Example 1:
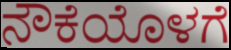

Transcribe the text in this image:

ನೌಕೆಯೊಳಗೆ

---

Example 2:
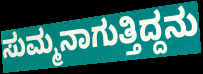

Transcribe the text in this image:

ಸುಮ್ಮನಾಗುತ್ತಿದ್ದನು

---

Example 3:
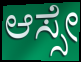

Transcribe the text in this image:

ಆಸ್ಸೇ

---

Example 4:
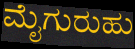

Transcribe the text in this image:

ಮೈಗುರುಹು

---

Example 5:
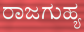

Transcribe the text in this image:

ರಾಜಗುಹ್ಯ